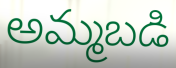
అమ్మబడి